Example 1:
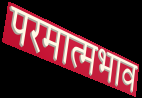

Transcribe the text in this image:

परमात्मभाव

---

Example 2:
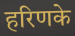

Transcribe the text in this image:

हरिणके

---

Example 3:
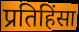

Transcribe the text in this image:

प्रतिहिंसा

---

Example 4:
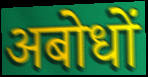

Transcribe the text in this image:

अबोधों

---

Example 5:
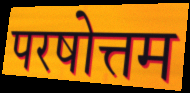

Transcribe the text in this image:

परषोत्तम